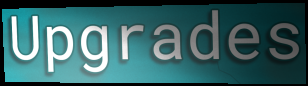
Upgrades